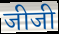
जीजी